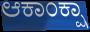
ಆಕಾಂಕ್ಷಾ